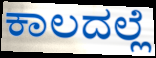
ಕಾಲದಲ್ಲೆ